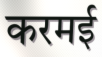
करमई